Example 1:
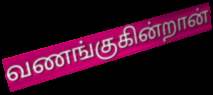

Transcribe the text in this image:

வணங்குகின்றான்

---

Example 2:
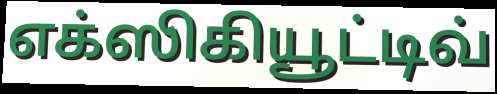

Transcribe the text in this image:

எக்ஸிகியூட்டிவ்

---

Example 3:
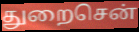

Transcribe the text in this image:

துறைசென்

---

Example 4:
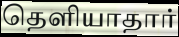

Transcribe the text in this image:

தெளியாதார்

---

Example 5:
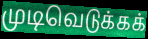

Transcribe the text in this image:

முடிவெடுக்கக்